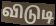
விடுடி